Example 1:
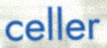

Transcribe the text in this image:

celler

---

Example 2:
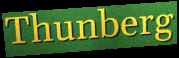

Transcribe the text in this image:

Thunberg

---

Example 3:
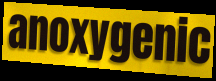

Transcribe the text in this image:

anoxygenic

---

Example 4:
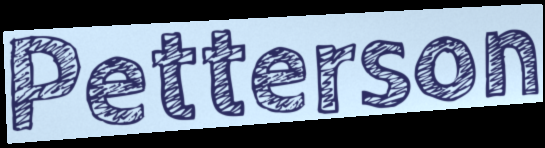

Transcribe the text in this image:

Petterson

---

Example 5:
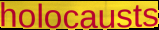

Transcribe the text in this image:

holocausts